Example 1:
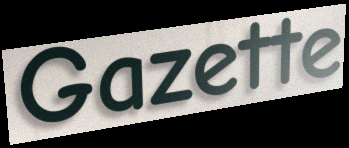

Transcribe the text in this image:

Gazette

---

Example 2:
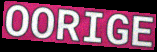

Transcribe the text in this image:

OORIGE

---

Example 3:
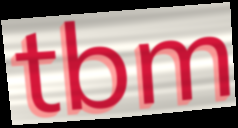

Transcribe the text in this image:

tbm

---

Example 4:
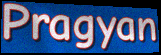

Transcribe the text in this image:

Pragyan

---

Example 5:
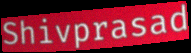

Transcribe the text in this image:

Shivprasad